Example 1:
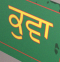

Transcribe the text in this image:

ਕੁਵਾ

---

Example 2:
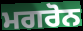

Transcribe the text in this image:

ਮਗਰੋਨ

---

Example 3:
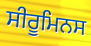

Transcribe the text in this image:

ਸੀਰੂਮਿਨਸ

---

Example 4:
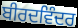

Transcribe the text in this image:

ਬੀਰਦਵਿੰਦਰ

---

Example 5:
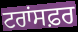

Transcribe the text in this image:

ਟਰਾਂਸਫ਼ਰ